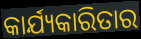
କାର୍ଯ୍ୟକାରିତାର